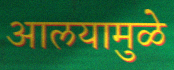
आलयामुळे